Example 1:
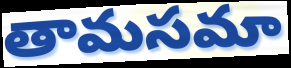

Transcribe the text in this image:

తామసమా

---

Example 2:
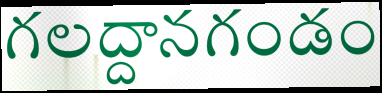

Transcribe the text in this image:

గలద్దానగండం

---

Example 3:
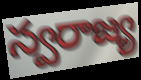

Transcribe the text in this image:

స్వరాజ్య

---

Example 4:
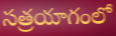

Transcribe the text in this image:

సత్రయాగంలో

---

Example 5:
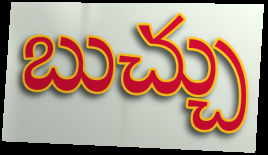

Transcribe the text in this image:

బుచ్చు